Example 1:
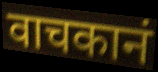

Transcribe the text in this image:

वाचकानं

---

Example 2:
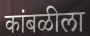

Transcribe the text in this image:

कांबळीला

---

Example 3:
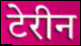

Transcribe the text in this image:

टेरीन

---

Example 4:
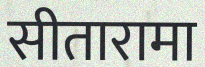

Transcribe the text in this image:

सीतारामा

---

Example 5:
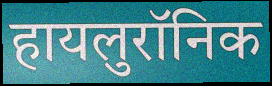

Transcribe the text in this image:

हायलुरॉनिक